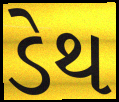
ડેથ